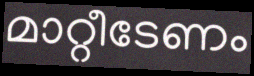
മാറ്റീടേണം